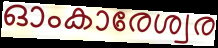
ഓംകാരേശ്വര